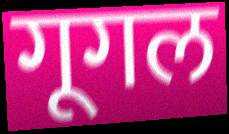
गूगल